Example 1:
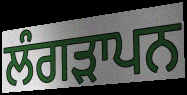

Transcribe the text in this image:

ਲੰਗੜਾਪਨ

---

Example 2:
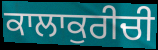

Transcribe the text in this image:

ਕਾਲਾਕੁਰੀਚੀ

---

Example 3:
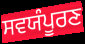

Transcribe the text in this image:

ਸਵਯੰਪੂਰਣ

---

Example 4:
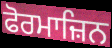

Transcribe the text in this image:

ਫੋਰਮਾਜ਼ਿਨ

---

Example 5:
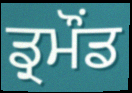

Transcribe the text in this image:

ਡ੍ਰਮੌਂਡ